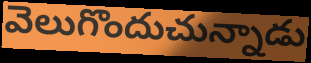
వెలుగొందుచున్నాడు